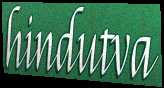
hindutva